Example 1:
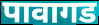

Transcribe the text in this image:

पावागड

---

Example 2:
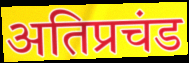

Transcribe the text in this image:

अतिप्रचंड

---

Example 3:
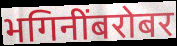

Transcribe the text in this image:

भगिनींबरोबर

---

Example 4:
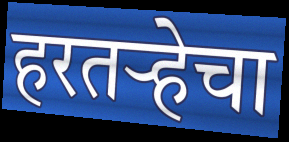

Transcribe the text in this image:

हरतऱ्हेचा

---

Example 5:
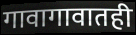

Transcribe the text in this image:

गावागावातही